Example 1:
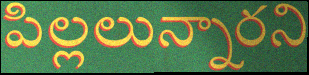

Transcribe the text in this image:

పిల్లలున్నారని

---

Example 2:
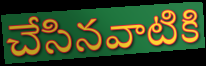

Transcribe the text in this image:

చేసినవాటికి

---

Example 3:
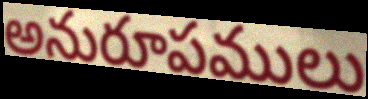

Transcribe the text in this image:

అనురూపములు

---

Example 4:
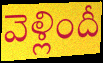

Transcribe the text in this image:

వెళ్లిందీ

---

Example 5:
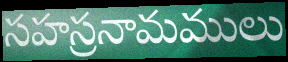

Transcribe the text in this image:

సహస్రనామములు